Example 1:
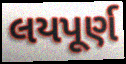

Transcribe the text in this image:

લયપૂર્ણ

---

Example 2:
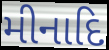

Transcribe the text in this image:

મીનાદિ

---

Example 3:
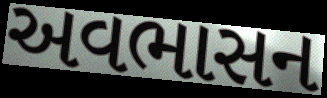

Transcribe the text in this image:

અવભાસન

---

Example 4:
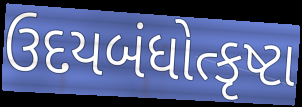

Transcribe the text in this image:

ઉદયબંધોત્કૃષ્ટા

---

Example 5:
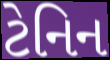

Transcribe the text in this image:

ટેનિન